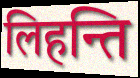
लिहन्ति